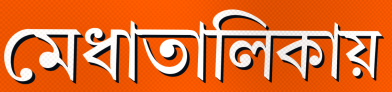
মেধাতালিকায়